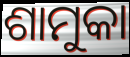
ଶାମୁକା